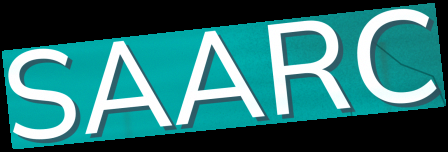
SAARC